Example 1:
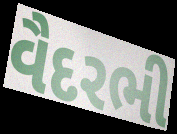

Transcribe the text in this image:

વૈદરભી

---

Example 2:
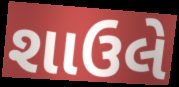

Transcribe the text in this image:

શાઉલે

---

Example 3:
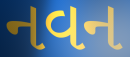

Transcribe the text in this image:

નવન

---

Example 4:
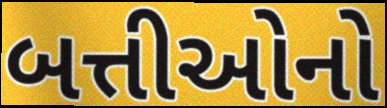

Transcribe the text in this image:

બત્તીઓનો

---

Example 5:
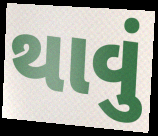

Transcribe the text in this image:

થાવું